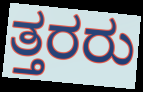
ತ್ತರರು